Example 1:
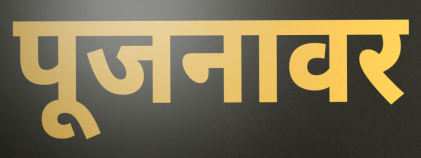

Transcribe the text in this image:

पूजनावर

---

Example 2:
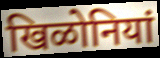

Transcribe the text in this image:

खिळोनियां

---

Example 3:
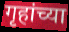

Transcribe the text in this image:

गृहांच्या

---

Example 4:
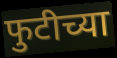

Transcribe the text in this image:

फुटीच्या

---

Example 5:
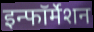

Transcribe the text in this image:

इन्फॉर्मेशन